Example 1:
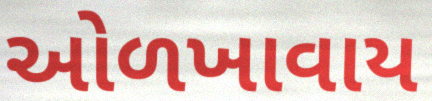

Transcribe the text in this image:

ઓળખાવાય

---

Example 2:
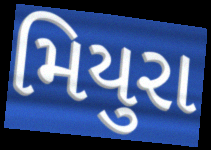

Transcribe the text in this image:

મિયુરા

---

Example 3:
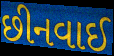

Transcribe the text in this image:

છીનવાઈ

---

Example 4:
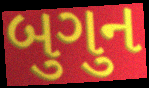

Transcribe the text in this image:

બુગુન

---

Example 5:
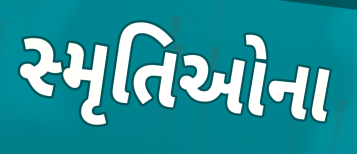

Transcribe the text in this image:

સ્મૃતિઓના